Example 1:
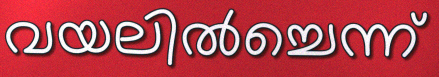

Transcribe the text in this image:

വയലിൽച്ചെന്ന്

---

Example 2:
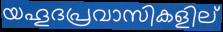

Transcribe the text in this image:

യഹൂദപ്രവാസികളില്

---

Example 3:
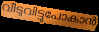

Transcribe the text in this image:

വീടുവിട്ടുപോകാൻ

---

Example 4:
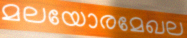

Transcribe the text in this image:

മലയോരമേഖല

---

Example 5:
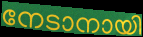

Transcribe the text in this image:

നേടാനായി